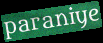
paraniye